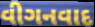
વીગનવાદ